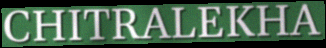
CHITRALEKHA